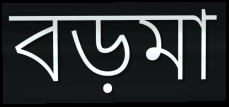
বড়মা